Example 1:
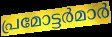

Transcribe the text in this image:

പ്രമോട്ടർമാർ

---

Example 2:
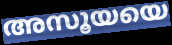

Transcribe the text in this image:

അസൂയയെ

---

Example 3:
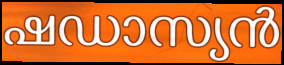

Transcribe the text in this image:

ഷഡാസ്യൻ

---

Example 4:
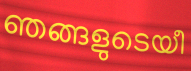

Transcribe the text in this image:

ഞങ്ങളുടെയീ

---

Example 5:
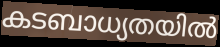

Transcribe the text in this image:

കടബാധ്യതയിൽ